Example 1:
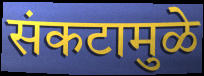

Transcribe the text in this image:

संकटामुळे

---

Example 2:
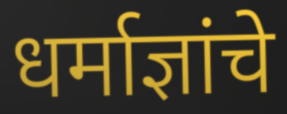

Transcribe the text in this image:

धर्माज्ञांचे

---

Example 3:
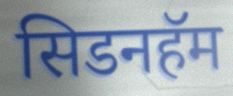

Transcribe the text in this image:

सिडनहॅम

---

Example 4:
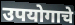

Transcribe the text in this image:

उपयोगाचे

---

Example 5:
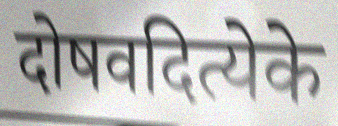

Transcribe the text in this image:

दोषवदित्येके